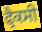
ਫ੍ਰੈਕਸੀ